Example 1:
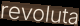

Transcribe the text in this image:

revoluta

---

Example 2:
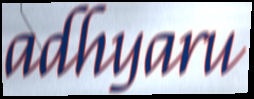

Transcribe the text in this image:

adhyaru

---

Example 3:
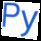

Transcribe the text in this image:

Py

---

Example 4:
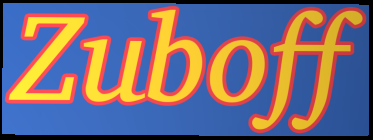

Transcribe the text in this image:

Zuboff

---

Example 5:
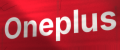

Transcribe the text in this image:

Oneplus